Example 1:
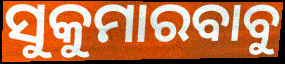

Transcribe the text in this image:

ସୁକୁମାରବାବୁ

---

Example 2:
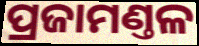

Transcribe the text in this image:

ପ୍ରଜାମଣ୍ତଳ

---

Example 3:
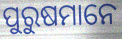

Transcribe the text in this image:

ପୁରୁଷମାନେ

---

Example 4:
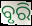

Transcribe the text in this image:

ବୃରି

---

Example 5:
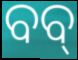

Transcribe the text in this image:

ବବ୍